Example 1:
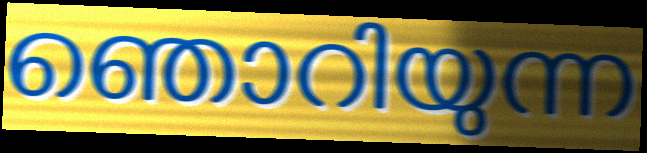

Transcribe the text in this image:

ഞൊറിയുന്ന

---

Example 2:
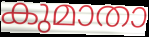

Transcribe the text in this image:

കുമാതാ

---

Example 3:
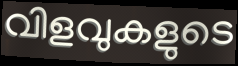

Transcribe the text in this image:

വിളവുകളുടെ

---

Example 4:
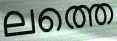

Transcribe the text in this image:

ലത്തെ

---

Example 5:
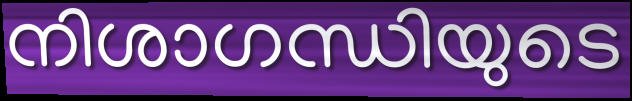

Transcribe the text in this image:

നിശാഗന്ധിയുടെ